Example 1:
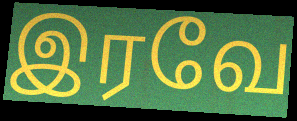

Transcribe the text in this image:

இரவே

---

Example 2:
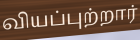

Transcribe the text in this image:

வியப்புற்றார்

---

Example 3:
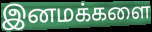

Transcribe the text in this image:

இனமக்களை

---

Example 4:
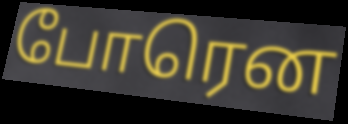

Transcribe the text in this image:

போரென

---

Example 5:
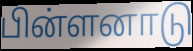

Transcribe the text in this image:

பின்ளனாடு